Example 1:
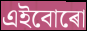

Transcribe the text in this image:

এইবোৰো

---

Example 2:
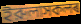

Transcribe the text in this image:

ইৰুলাসকলৰ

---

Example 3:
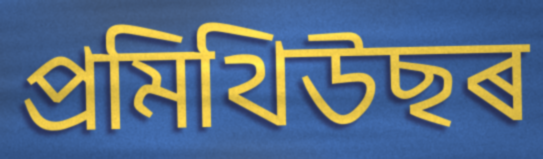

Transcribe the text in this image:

প্ৰমিথিউছৰ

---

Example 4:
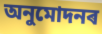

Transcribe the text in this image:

অনুমোদনৰ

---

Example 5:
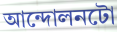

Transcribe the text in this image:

আন্দোলনটো